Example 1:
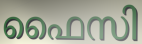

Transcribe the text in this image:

ഫൈസി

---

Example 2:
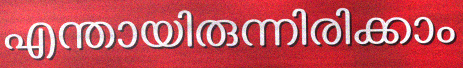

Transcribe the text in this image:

എന്തായിരുന്നിരിക്കാം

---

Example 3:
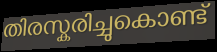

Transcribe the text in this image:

തിരസ്കരിച്ചുകൊണ്ട്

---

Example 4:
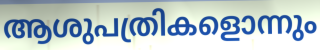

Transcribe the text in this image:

ആശുപത്രികളൊന്നും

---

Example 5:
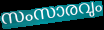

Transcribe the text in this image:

സംസാരവും